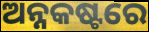
ଅନ୍ନକଷ୍ଟରେ